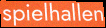
spielhallen